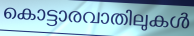
കൊട്ടാരവാതിലുകൾ